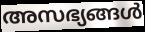
അസഭ്യങ്ങൾ